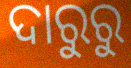
ଦାରୁରୁ